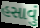
હસાવું